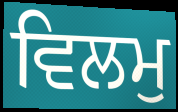
ਵਿਲਮੁ